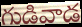
గుడివాడ